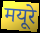
मयूरे